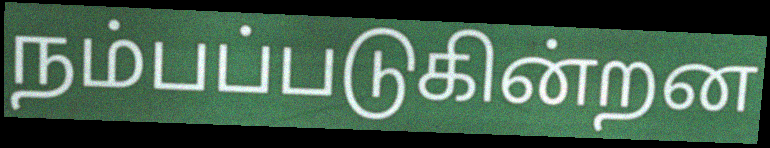
நம்பப்படுகின்றன